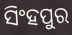
ସିଂହପୁର